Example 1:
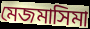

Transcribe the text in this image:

মেজমাসিমা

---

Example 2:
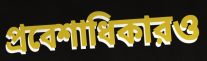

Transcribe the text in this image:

প্রবেশাধিকারও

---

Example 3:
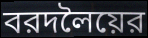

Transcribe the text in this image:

বরদলৈয়ের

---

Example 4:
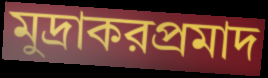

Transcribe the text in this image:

মুদ্রাকরপ্রমাদ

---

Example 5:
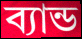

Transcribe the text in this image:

ব্যান্ড